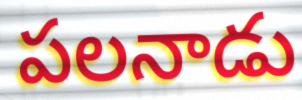
పలనాడు